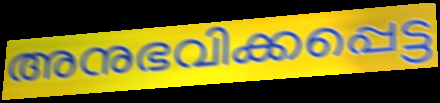
അനുഭവിക്കപ്പെട്ട